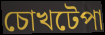
চোখটেপা